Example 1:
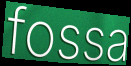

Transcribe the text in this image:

fossa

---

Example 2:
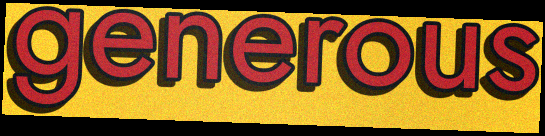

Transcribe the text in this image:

generous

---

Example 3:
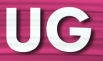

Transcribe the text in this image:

UG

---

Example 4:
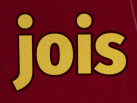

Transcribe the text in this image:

jois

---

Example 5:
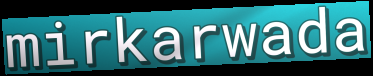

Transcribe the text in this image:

mirkarwada